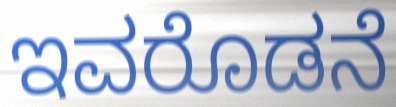
ಇವರೊಡನೆ